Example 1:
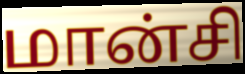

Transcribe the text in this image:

மான்சி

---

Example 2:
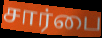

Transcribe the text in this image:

சார்பை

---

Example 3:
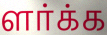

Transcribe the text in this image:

ளர்க்க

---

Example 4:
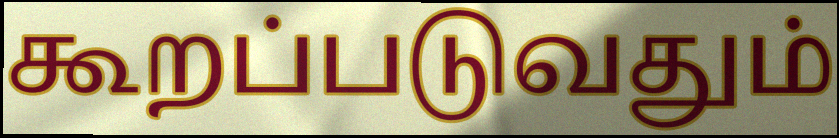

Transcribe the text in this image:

கூறப்படுவதும்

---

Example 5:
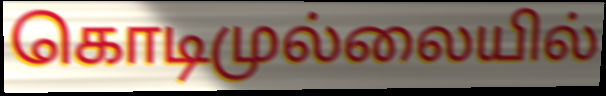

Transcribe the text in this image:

கொடிமுல்லையில்